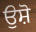
ਉਸ਼ੋ